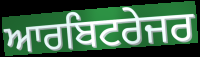
ਆਰਬਿਟਰੇਜਰ